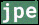
jpe